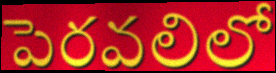
పెరవలిలో